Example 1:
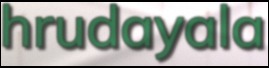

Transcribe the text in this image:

hrudayala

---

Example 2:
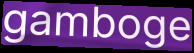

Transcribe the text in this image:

gamboge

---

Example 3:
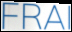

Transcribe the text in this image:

FRAI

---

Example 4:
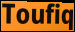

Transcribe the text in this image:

Toufiq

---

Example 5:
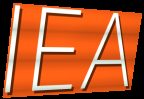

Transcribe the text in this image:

IEA